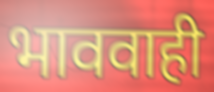
भाववाही